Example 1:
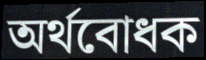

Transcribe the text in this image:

অর্থবোধক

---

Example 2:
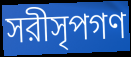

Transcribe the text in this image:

সরীসৃপগণ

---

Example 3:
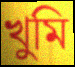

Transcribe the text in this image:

খুমি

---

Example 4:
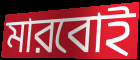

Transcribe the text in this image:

মারবোই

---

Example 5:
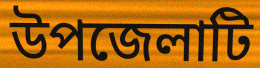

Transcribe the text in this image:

উপজেলাটি